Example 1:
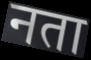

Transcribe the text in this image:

नता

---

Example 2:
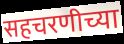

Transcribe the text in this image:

सहचरणीच्या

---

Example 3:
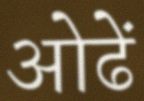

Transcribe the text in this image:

ओढें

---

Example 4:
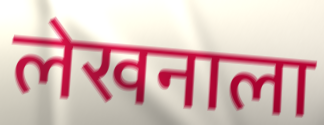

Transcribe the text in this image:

लेखनाला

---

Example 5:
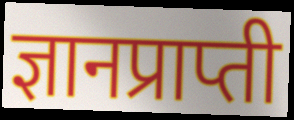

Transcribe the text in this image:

ज्ञानप्राप्ती